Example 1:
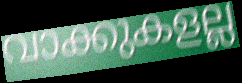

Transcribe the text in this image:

വാക്കുകളല്ല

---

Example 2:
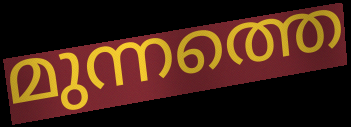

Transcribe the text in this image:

മുന്നത്തെ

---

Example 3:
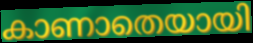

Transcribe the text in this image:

കാണാതെയായി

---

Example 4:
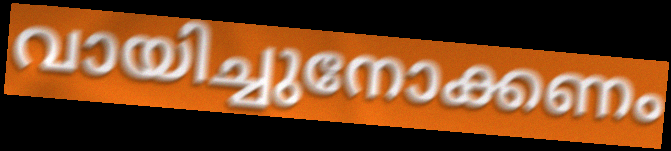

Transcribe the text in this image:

വായിച്ചുനോക്കണം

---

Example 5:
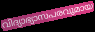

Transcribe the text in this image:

വിദ്യാഭ്യാസപരവുമായ